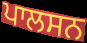
ਪਾਲਸਨ